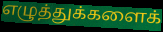
எழுத்துக்களைக்